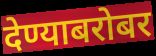
देण्याबरोबर